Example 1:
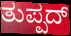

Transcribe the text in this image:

ತುಪ್ಪದ್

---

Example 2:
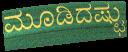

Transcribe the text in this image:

ಮೂಡಿದಷ್ಟು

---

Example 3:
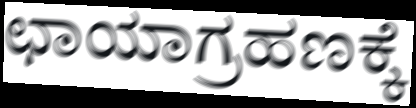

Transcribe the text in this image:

ಛಾಯಾಗ್ರಹಣಕ್ಕೆ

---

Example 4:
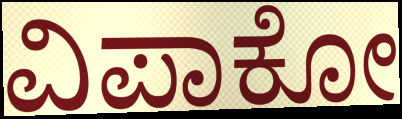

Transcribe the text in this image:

ವಿಪಾಕೋ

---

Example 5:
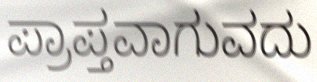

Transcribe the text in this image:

ಪ್ರಾಪ್ತವಾಗುವದು